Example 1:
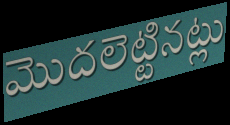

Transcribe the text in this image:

మొదలెట్టినట్లు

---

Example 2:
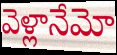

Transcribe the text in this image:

వెళ్లానేమో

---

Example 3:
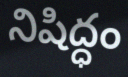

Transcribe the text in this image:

నిషిద్ధం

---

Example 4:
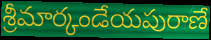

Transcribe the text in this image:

శ్రీమార్కండేయపురాణే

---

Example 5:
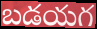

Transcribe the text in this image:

బడయగ